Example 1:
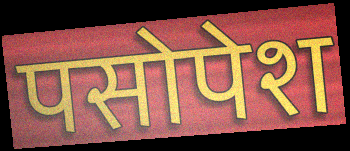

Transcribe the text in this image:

पसोपेश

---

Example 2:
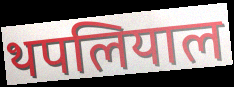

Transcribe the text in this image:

थपलियाल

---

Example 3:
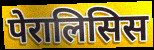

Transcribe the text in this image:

पेरालिसिस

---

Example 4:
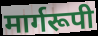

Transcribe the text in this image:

मार्गरूपी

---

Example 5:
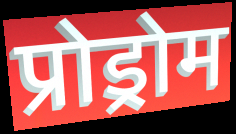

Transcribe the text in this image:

प्रोड्रोम